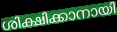
ശിക്ഷിക്കാനായി